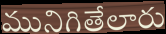
మునిగితేలారు